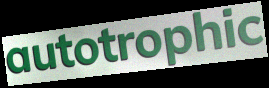
autotrophic